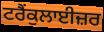
ਟਰੈਂਕੁਲਾਈਜ਼ਰ